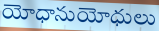
యోధానుయోధులు